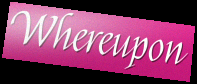
Whereupon